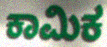
ಕಾಮಿಕ